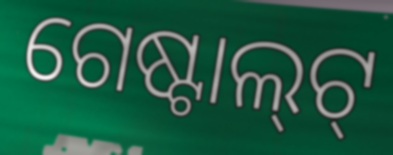
ଗେଷ୍ଟାଲ୍‌ଟ୍